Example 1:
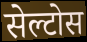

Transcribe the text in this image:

सेल्टोस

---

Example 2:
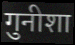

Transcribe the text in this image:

गुनीशा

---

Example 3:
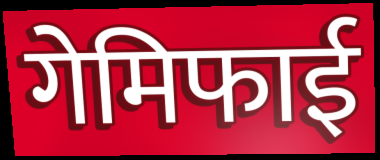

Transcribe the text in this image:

गेमिफाई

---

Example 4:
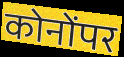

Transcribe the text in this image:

कोनोंपर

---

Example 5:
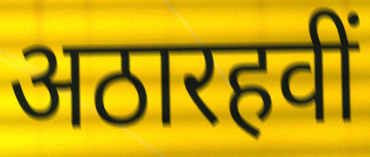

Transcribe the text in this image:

अठारहवीं